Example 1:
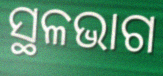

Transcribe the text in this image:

ସ୍ଥଳଭାଗ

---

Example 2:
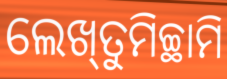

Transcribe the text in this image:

ଲେଖ୍‌ତୁମିଚ୍ଛାମି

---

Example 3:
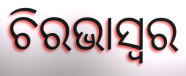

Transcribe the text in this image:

ଚିରଭାସ୍ଵର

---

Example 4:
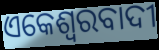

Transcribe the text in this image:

ଏକେଶ୍ଵରବାଦୀ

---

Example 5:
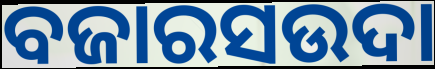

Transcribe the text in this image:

ବଜାରସଉଦା